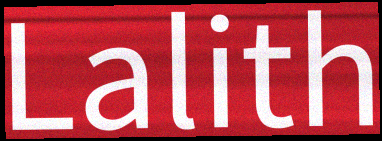
Lalith